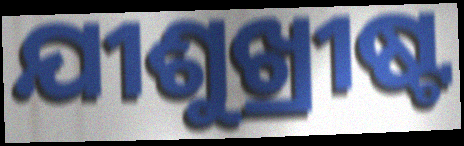
ଯୀଶୁଖ୍ରୀଷ୍ଟ